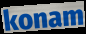
konam